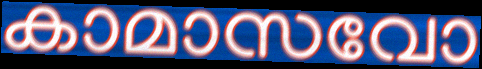
കാമാസവോ